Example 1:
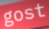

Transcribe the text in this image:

gost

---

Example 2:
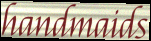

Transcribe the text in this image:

handmaids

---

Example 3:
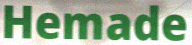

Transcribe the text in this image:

Hemade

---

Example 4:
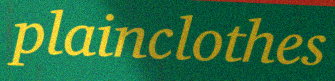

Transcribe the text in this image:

plainclothes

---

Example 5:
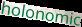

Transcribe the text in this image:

holonomic